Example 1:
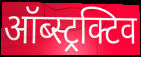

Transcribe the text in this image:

ऑब्स्ट्रक्टिव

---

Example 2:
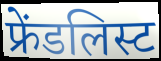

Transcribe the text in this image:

फ्रेंडलिस्ट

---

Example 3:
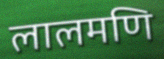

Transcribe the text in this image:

लालमणि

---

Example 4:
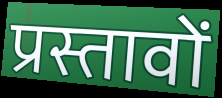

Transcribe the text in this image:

प्रस्‍तावों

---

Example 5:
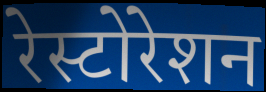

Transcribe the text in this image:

रेस्टोरेशन